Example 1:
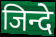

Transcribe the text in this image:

जिन्दे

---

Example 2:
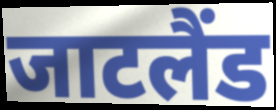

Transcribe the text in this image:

जाटलैंड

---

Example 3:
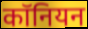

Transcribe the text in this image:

कॉनियन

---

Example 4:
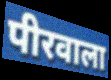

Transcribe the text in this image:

पीरवाला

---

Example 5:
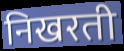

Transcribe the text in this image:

निखरती